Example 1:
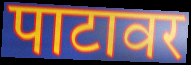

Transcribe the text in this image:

पाटावर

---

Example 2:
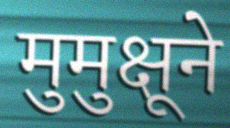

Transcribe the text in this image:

मुमुक्षूने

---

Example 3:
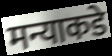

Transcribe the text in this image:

मन्याकडे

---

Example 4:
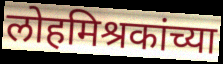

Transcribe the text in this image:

लोहमिश्रकांच्या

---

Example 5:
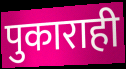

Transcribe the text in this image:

पुकाराही